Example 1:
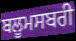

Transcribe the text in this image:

ਬਲੂਮਸਬਰੀ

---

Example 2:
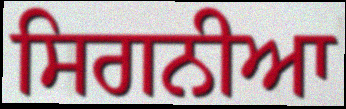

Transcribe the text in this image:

ਸਿਗਨੀਆ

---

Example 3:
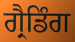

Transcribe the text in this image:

ਗ੍ਰੈਡਿੰਗ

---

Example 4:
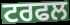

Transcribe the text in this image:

ਟਰਫਲ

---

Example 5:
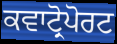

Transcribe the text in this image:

ਕਵਾਟ੍ਰੋਪੋਰਟ